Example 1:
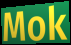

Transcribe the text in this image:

Mok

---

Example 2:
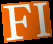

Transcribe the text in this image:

FI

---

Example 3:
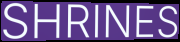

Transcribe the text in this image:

SHRINES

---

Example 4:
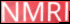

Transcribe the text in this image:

NMRI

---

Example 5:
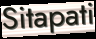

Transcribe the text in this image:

Sitapati